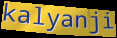
kalyanji